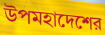
উপমহাদেশের